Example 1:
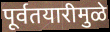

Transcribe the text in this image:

पूर्वतयारीमुळे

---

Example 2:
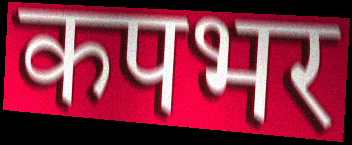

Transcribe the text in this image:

कपभर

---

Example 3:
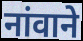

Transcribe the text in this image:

नांवाने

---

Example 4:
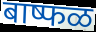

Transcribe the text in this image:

बाष्फळ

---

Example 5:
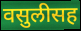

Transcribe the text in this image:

वसुलीसह